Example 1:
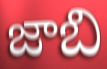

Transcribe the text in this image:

జాబి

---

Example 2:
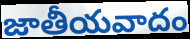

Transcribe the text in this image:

జాతీయవాదం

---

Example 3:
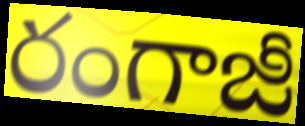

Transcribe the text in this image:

రంగాజీ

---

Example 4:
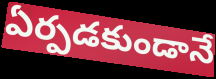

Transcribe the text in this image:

ఏర్పడకుండానే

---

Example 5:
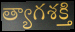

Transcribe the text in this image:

త్యాగశక్తి